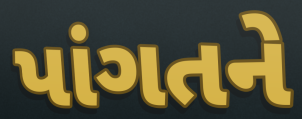
પાંગતને